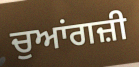
ਚੁਆਂਗਜ਼ੀ